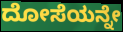
ದೋಸೆಯನ್ನೇ